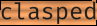
clasped